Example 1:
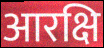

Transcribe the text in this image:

आरक्षि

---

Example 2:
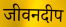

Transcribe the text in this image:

जीवनदीप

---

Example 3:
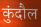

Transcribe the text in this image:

कुंदौल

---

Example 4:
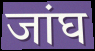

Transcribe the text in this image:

जांघ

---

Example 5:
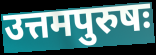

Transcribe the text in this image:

उत्तमपुरुषः